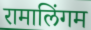
रामालिंगम